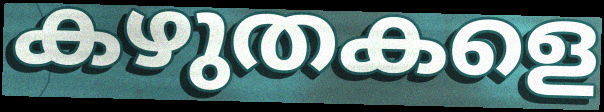
കഴുതകളെ